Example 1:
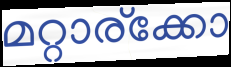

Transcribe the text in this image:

മറ്റാര്ക്കോ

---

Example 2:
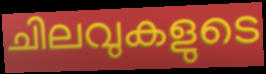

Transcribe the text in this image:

ചിലവുകളുടെ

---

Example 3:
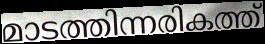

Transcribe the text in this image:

മാടത്തിന്നരികത്ത്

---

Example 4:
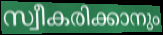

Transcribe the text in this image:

സ്വീകരിക്കാനും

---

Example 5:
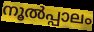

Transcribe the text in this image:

നൂൽപ്പാലം